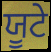
ਯੂਟੇ